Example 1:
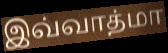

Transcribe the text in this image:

இவ்வாத்மா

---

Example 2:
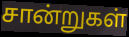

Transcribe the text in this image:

சான்றுகள்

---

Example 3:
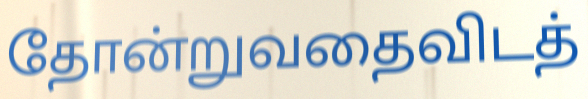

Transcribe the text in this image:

தோன்றுவதைவிடத்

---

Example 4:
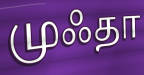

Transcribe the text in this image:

முஃதா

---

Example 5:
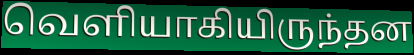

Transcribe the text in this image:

வெளியாகியிருந்தன